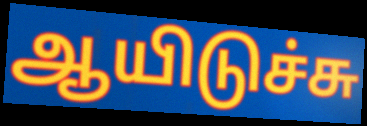
ஆயிடுச்சு